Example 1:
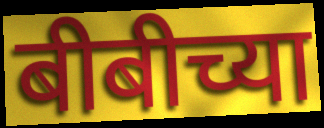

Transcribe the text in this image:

बीबीच्या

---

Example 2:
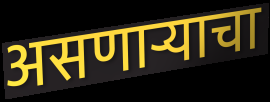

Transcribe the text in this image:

असणाऱ्याचा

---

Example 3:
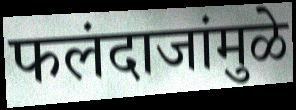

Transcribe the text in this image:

फलंदाजांमुळे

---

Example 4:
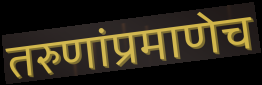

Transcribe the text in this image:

तरुणांप्रमाणेच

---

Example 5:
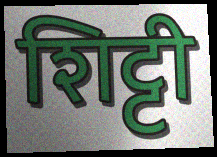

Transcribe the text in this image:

शिट्टी